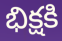
భిక్షకి